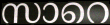
സാറെ